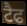
ਟੈਫ